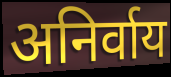
अनिर्वाय